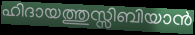
ഹിദായത്തുസ്സിബിയാൻ